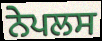
ਨੇਪਲਸ